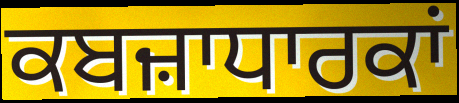
ਕਬਜ਼ਾਧਾਰਕਾਂ